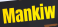
Mankiw